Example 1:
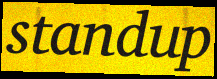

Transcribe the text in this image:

standup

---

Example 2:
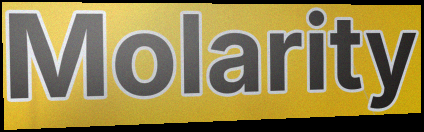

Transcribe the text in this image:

Molarity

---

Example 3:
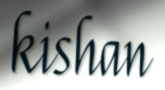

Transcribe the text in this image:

kishan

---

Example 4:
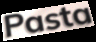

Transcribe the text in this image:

Pasta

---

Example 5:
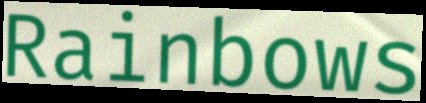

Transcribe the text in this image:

Rainbows